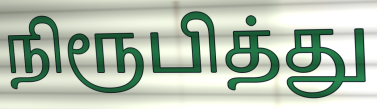
நிரூபித்து